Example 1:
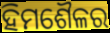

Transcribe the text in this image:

ହିମଶୈଳର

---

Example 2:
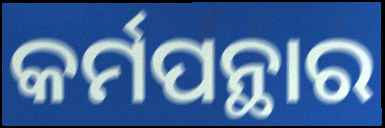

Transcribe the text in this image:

କର୍ମପନ୍ଥାର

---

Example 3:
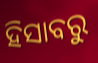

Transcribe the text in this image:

ହିସାବରୁ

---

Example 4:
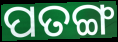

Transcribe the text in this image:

ପତଙ୍ଗ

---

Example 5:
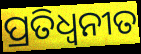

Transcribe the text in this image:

ପ୍ରତିଧ୍ବନୀତ